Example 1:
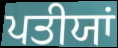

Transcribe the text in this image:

ਪਤੀਯਾਂ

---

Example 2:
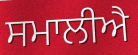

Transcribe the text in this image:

ਸਮਾਲੀਐ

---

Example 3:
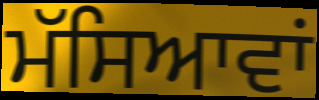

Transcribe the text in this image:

ਮੱਸਿਆਵਾਂ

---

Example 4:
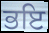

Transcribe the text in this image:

ਭਇ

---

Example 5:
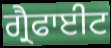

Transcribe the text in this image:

ਗ੍ਰੈਫਾਈਟ